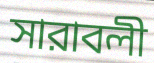
সারাবলী